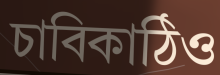
চাবিকাঠিও